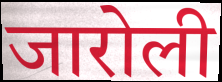
जारोली